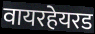
वायरहेयरड